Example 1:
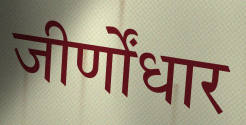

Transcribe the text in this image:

जीर्णोंधार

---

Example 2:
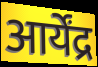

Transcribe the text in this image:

आर्येंद्र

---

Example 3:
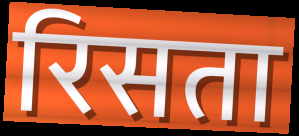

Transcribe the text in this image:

रिसता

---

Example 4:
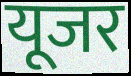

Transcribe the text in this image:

यूजर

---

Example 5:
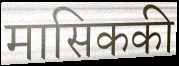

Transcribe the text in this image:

मासिककी